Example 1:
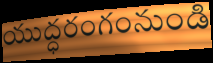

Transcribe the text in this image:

యుద్ధరంగంనుండి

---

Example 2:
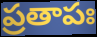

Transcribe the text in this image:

ప్రతాపః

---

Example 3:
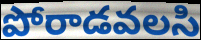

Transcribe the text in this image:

పోరాడవలసి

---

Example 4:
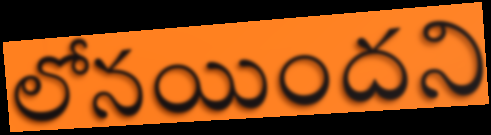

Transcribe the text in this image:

లోనయిందని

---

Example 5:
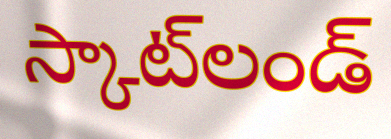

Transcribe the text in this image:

స్కాట్‌లండ్